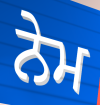
ਨੇਮ